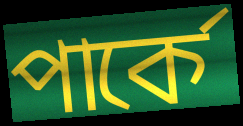
পার্কে